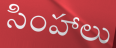
సింహాలు